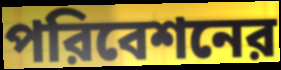
পরিবেশনের